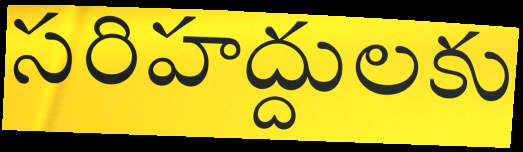
సరిహద్దులకు